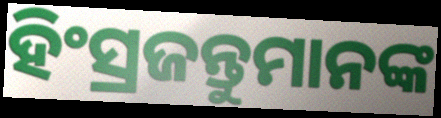
ହିଂସ୍ରଜନ୍ତୁମାନଙ୍କ